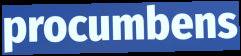
procumbens